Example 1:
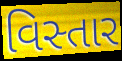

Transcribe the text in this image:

વિસ્તાર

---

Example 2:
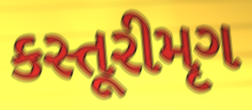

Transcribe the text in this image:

કસ્તૂરીમૃગ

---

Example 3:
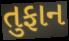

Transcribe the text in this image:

તુફાન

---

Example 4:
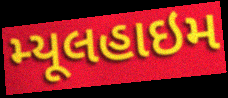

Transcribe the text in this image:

મ્યૂલહાઇમ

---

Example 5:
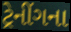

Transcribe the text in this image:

ટ્રેનીંગના